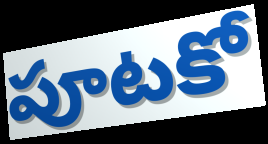
పూటకో